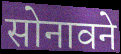
सोनावने